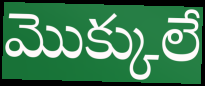
మొక్కులే